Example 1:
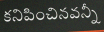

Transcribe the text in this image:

కనిపించినవన్నీ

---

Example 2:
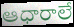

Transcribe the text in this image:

ఆధారాలే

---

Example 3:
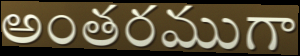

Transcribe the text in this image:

అంతరముగా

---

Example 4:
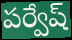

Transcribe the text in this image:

పర్వేష్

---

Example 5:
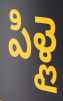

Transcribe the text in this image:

పిళ్లై